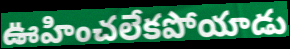
ఊహించలేకపోయాడు